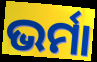
ଭର୍ମା